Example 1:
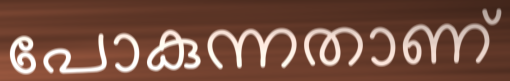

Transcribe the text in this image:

പോകുന്നതാണ്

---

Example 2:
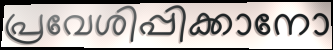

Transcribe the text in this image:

പ്രവേശിപ്പിക്കാനോ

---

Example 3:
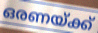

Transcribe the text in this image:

ഒരണയ്ക്ക്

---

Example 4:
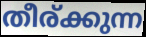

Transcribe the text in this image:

തീര്ക്കുന്ന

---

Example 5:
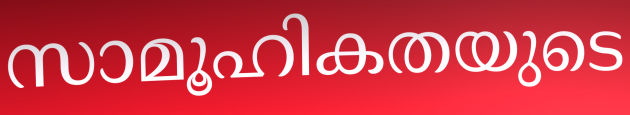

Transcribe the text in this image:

സാമൂഹികതയുടെ